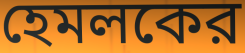
হেমলকের